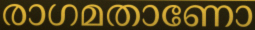
രാഗമതാണോ